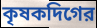
কৃষকদিগের